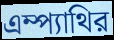
এম্প্যাথির